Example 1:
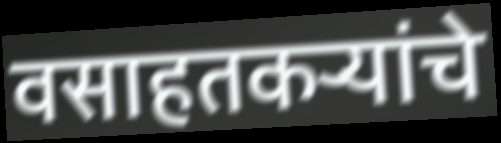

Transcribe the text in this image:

वसाहतकऱ्यांचे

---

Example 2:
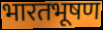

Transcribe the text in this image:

भारतभूषण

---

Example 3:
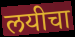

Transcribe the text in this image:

लयीचा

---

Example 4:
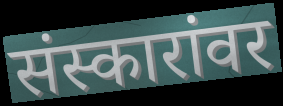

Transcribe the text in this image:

संस्कारांवर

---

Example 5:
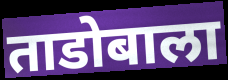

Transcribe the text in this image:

ताडोबाला